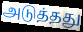
அடுத்தது